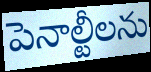
పెనాల్టీలను